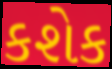
કશેક